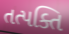
તત્પક્તિ